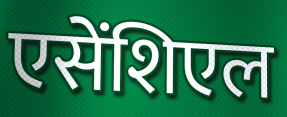
एसेंशिएल